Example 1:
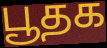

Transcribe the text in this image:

பூதக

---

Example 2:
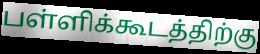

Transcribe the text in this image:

பள்ளிக்கூடத்திற்கு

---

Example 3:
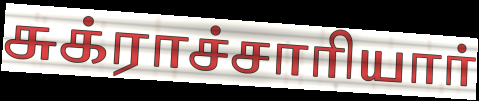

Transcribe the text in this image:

சுக்ராச்சாரியார்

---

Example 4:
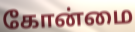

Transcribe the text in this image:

கோன்மை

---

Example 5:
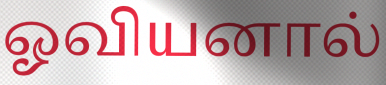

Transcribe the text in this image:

ஓவியனால்